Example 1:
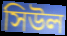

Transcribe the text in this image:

সিউল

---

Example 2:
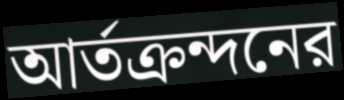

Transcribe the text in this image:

আর্তক্রন্দনের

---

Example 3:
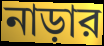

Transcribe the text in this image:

নাড়ার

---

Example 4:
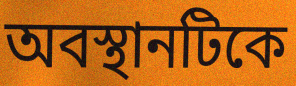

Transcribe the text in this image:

অবস্থানটিকে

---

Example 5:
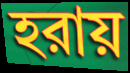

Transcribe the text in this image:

হরায়